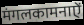
मंगलकामनाऐं